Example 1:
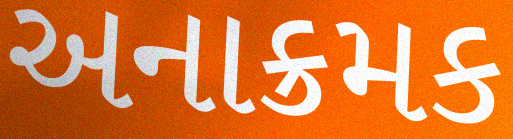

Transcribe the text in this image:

અનાક્રમક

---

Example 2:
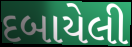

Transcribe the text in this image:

દબાયેલી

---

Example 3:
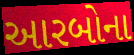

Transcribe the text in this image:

આરબોના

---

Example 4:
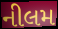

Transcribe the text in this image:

નીલમ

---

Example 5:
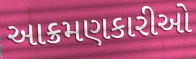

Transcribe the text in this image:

આક્રમણકારીઓ